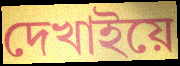
দেখাইয়ে